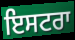
ਇਸਟਰਾ